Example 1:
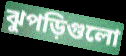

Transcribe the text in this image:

ঝুপড়িগুলো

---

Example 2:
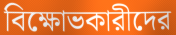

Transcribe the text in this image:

বিক্ষোভকারীদের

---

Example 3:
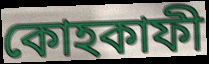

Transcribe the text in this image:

কোহকাফী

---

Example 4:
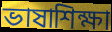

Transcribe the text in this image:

ভাষাশিক্ষা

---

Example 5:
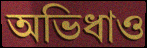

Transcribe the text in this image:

অভিধাও